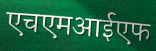
एचएमआईएफ